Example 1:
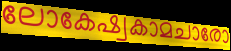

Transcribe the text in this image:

ലോകേഷ്വകാമചാരോ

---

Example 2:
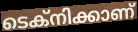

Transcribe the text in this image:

ടെക്നിക്കാണ്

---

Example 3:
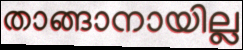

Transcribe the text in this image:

താങ്ങാനായില്ല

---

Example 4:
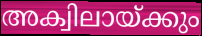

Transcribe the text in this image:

അക്വിലായ്ക്കും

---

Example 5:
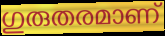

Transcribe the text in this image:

ഗുരുതരമാണ്